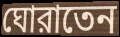
ঘোরাতেন